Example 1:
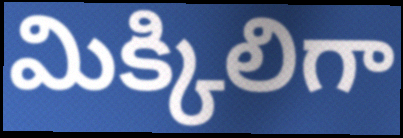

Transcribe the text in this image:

మిక్కిలిగా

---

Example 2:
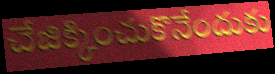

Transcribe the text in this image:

చేజిక్కించుకొనేందుకు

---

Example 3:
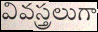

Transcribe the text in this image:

వివస్త్రలుగా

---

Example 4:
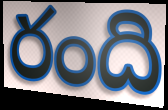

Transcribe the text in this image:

రంది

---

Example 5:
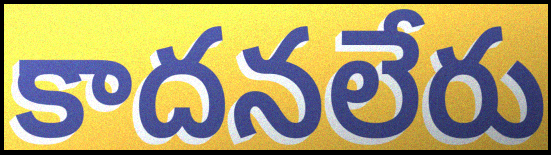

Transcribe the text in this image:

కాదనలేరు